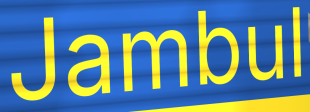
Jambul